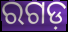
ରଗଡ଼